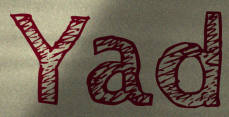
Yad